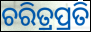
ଚରିତ୍ରପ୍ରତି